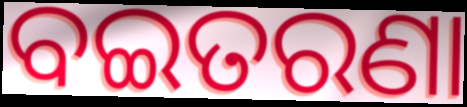
ବଇତରଣା